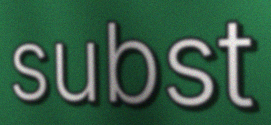
subst